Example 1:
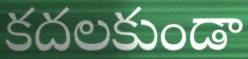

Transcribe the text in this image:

కదలకుండా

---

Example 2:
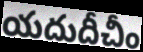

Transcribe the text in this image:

యదుదీచీం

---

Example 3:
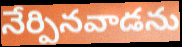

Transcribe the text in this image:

నేర్పినవాడను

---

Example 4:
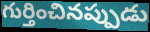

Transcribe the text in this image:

గుర్తించినప్పుడు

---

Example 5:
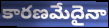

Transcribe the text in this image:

కారణమేదైనా